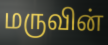
மருவின்